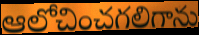
ఆలోచించగలిగాను